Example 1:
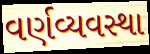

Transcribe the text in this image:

વર્ણવ્યવસ્થા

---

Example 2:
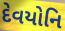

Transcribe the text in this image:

દેવયોનિ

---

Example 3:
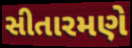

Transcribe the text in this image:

સીતારમણે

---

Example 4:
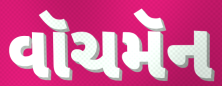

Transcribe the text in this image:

વૉચમૅન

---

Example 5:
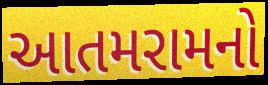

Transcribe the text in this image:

આતમરામનો